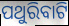
ପଥୁରିବାଟି